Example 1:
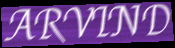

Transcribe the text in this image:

ARVIND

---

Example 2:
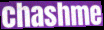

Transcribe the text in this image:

chashme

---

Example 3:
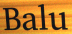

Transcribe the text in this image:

Balu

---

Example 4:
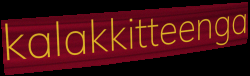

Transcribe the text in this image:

kalakkitteenga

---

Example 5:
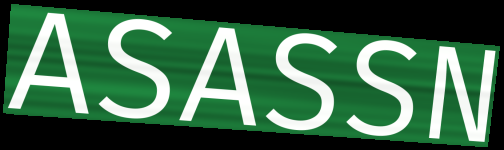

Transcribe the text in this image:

ASASSN